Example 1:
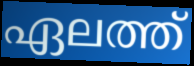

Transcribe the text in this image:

ഏലത്ത്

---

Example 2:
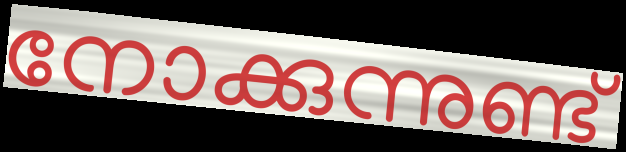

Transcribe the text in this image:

നോക്കുന്നുണ്ട്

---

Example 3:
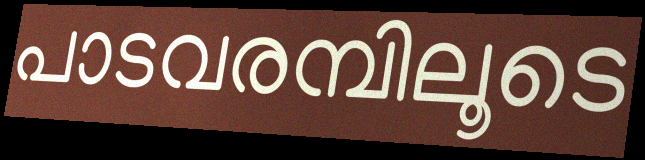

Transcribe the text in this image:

പാടവരമ്പിലൂടെ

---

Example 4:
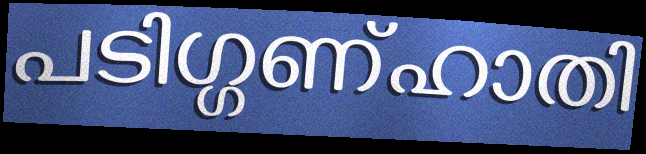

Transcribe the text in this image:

പടിഗ്ഗണ്ഹാതി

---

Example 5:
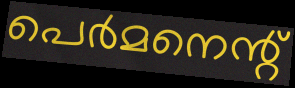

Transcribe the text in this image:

പെർമനെന്റ്